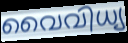
വൈവിധ്യ